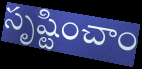
సృష్టించాం